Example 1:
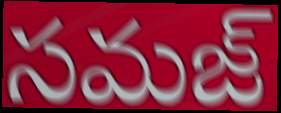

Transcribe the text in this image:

సమజ్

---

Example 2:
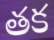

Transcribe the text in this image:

తక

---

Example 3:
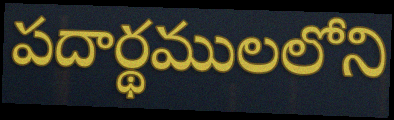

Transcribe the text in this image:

పదార్థములలోని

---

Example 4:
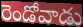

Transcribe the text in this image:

రెండోవాడు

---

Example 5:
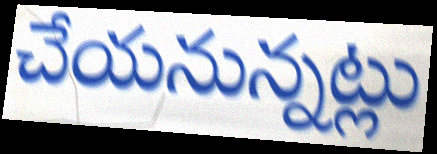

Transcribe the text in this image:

చేయనున్నట్లు